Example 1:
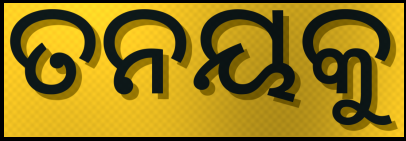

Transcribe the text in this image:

ତନୟକୁ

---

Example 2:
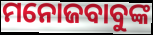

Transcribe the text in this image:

ମନୋଜବାବୁଙ୍କ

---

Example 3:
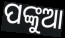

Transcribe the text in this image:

ପଙ୍କୁଆ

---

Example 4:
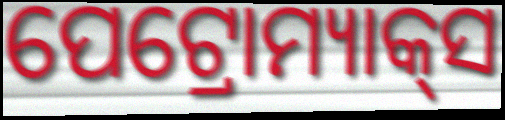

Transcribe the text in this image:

ପେଟ୍ରୋମ୍ୟାକ୍‌ସ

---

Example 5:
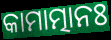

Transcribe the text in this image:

କାମାତ୍ମାନଃ